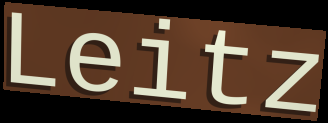
Leitz